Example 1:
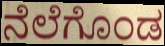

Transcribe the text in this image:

ನೆಲೆಗೊಂಡ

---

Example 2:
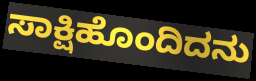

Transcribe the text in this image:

ಸಾಕ್ಷಿಹೊಂದಿದನು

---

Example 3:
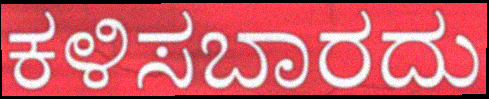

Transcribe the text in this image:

ಕಳಿಸಬಾರದು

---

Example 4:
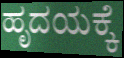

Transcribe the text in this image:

ಹೃದಯಕ್ಕೆ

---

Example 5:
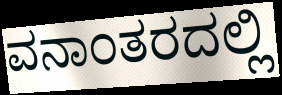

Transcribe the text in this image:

ವನಾಂತರದಲ್ಲಿ